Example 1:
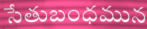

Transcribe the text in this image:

సేతుబంధమున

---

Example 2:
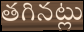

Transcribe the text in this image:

తగినట్లు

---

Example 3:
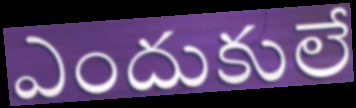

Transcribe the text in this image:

ఎందుకులే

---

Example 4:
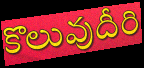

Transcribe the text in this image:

కొలువుదీరి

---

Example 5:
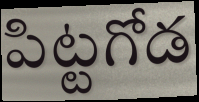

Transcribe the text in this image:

పిట్టగోడ